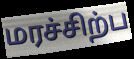
மரச்சிற்ப